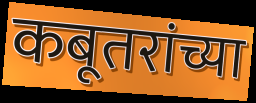
कबूतरांच्या